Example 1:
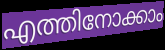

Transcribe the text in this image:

എത്തിനോക്കാം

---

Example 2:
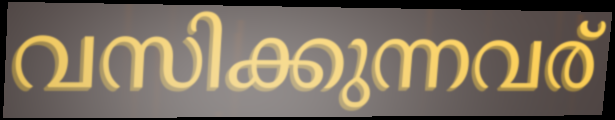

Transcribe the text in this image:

വസിക്കുന്നവര്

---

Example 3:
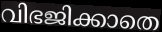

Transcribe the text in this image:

വിഭജിക്കാതെ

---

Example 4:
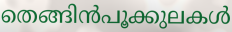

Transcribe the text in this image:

തെങ്ങിൻപൂക്കുലകൾ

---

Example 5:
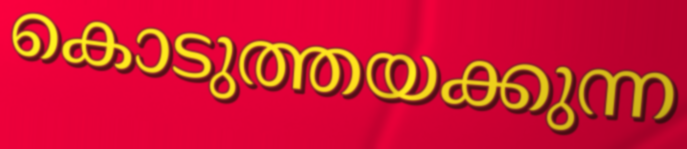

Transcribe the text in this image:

കൊടുത്തയക്കുന്ന